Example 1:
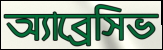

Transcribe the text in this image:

অ্যাব্রেসিভ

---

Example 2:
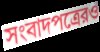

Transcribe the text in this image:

সংবাদপত্রেরও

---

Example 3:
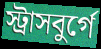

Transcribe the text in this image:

স্ট্রাসবুর্গে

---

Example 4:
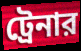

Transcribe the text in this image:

ট্রেনার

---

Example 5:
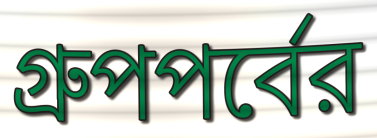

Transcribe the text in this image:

গ্রুপপর্বের